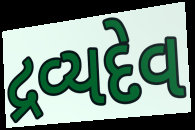
દ્રવ્યદેવ